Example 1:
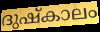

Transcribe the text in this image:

ദുഷ്കാലം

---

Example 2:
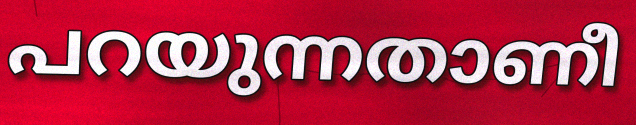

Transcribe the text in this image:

പറയുന്നതാണീ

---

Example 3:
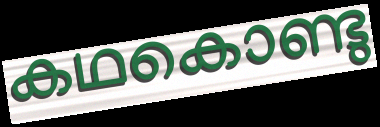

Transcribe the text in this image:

കഥകൊണ്ടു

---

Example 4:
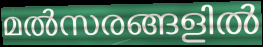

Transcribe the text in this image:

മൽസരങ്ങളിൽ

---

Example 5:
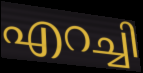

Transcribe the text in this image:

എറച്ചി